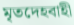
মৃতদেহবাহী